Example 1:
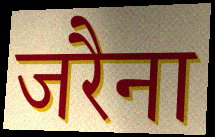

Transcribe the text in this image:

जरैना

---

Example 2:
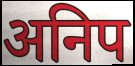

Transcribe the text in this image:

अनिप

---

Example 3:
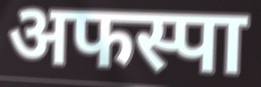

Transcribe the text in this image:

अफस्पा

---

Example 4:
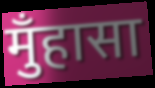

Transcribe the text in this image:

मुँहासा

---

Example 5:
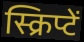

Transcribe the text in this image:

स्क्रिप्टें